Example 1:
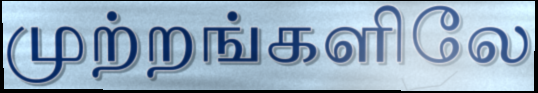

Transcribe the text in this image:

முற்றங்களிலே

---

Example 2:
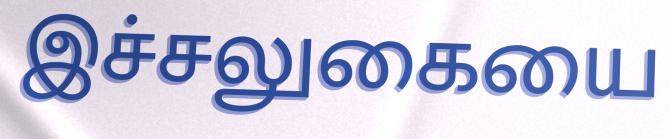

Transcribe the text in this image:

இச்சலுகையை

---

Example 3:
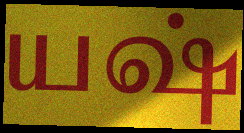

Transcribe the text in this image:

யஷ்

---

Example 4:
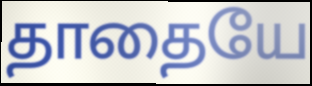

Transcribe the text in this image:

தாதையே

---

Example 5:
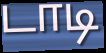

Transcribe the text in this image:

டாடி